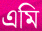
এমি